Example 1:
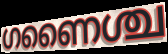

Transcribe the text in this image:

ഗണൈശ്ച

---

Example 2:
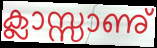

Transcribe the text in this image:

ക്ലാസ്സാണു്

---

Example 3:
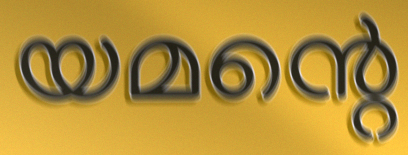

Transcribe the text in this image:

യമന്റെ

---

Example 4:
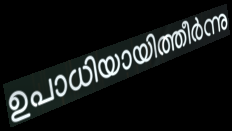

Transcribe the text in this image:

ഉപാധിയായിത്തീർന്നു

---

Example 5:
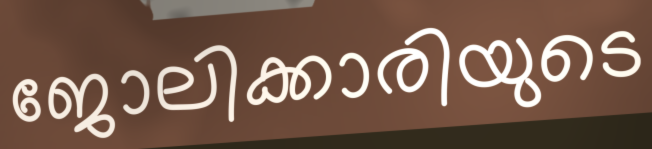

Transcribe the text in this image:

ജോലിക്കാരിയുടെ